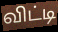
விட்டி